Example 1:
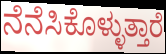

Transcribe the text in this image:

ನೆನೆಸಿಕೊಳ್ಳುತ್ತಾರೆ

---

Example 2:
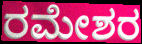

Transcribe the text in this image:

ರಮೇಶರ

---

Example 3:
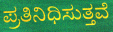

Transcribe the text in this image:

ಪ್ರತಿನಿಧಿಸುತ್ತವೆ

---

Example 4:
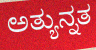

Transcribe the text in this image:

ಅತ್ಯುನ್ನತ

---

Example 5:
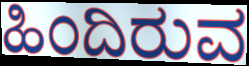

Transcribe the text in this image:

ಹಿಂದಿರುವ